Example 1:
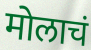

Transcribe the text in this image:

मोलाचं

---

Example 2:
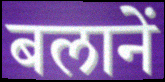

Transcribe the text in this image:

बलानें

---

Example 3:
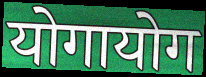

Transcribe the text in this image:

योगायोग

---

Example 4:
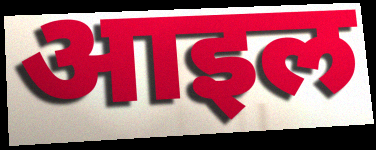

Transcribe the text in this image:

आइल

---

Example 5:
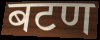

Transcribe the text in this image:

बटण